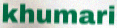
khumari